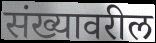
संख्यावरील